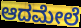
ಆದಮೇಲೆ